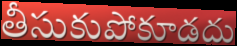
తీసుకుపోకూడదు